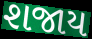
શજાય